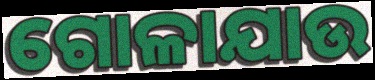
ଗୋଳାଯାଉ